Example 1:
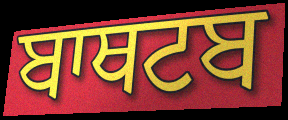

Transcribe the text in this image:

ਬਾਥਟਬ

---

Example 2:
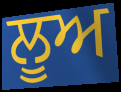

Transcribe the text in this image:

ਲੂਅ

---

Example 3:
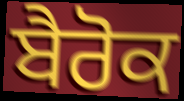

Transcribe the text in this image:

ਬੈਰੋਕ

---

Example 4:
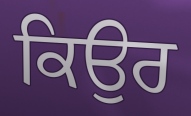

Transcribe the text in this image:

ਕਿਉਰ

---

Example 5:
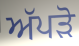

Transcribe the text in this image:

ਅੱਪੜੋ